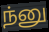
ந்னு